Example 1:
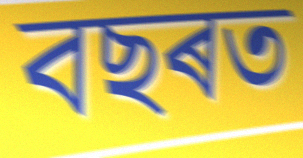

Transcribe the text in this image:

বছৰত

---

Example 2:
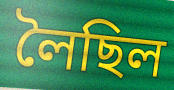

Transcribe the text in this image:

লৈছিল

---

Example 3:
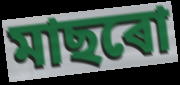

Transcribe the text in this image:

মাছৰো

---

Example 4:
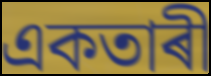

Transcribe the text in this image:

একতাৰী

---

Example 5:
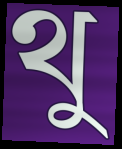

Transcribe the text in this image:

থু